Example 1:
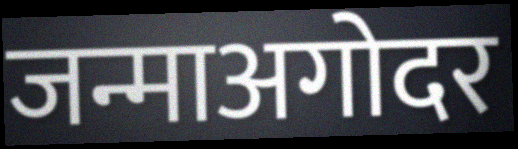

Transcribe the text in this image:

जन्माअगोदर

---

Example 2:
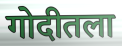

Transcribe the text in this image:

गोदीतला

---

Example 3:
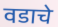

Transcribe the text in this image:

वडाचे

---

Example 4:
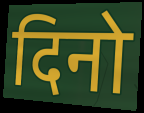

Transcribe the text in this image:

दिनो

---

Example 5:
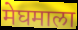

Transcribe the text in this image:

मेघमाला